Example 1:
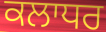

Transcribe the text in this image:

ਕਲਾਧਰ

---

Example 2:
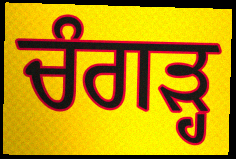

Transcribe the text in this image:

ਚੰਗੜ੍ਹ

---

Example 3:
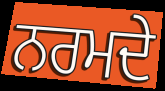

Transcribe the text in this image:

ਨਰਮਦੇ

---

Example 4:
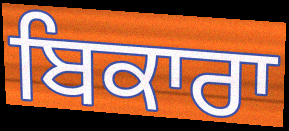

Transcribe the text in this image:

ਬਿਕਾਰਾ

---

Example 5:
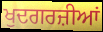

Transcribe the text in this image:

ਖੁਦਗਰਜ਼ੀਆਂ